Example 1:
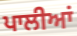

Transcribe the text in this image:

ਪਾਲੀਆਂ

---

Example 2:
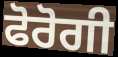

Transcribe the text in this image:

ਫੋਰੋਗੀ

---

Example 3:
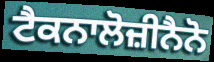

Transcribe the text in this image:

ਟੈਕਨਾਲੋਜ਼ੀਨੈਨੋ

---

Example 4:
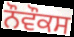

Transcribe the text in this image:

ਨੌਵੌਕਸ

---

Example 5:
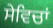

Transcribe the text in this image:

ਸੇਵਿਚਾਂ